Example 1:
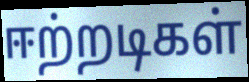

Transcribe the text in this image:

ஈற்றடிகள்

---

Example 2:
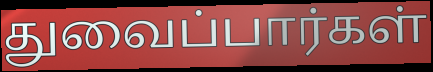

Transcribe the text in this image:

துவைப்பார்கள்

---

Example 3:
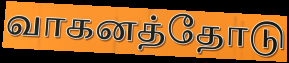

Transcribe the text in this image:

வாகனத்தோடு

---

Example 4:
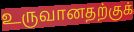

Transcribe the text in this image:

உருவானதற்குக்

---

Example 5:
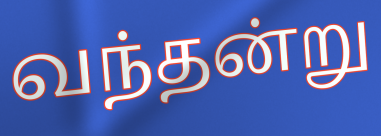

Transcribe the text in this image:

வந்தன்று